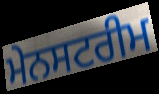
ਮੇਨਸਟਰੀਮ